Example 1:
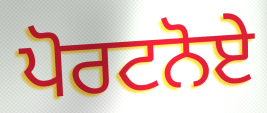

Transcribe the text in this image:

ਪੋਰਟਨੋਏ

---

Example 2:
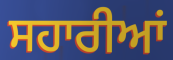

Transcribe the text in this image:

ਸਹਾਰੀਆਂ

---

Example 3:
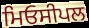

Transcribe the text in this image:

ਮਿਓਸੀਪਲ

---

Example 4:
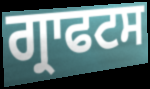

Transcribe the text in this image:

ਗ੍ਰਾਫਟਸ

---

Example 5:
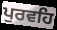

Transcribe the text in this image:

ਪੁਰਵਹਿ